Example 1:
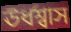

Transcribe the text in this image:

ঊর্ধশ্বাস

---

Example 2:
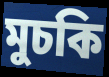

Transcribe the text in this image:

মুচকি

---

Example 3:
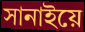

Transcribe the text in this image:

সানাইয়ে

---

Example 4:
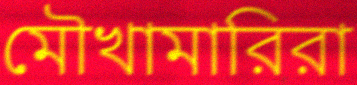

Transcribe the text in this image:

মৌখামারিরা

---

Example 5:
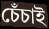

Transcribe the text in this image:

চেঁচাই